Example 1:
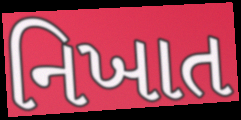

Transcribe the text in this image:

નિખાત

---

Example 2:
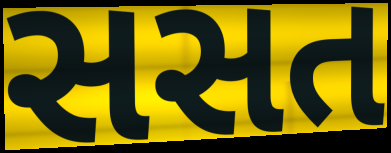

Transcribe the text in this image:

સસત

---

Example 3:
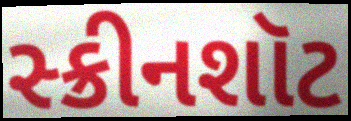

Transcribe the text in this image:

સ્ક્રીનશૉટ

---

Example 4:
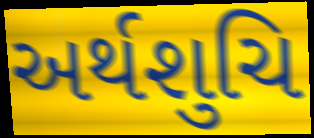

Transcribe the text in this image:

અર્થશુચિ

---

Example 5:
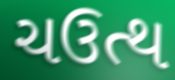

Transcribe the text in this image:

ચઉત્થ